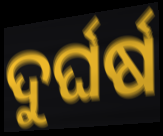
ଦୁର୍ଘର୍ଷ